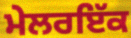
ਮੇਲਰਇੱਕ